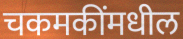
चकमकींमधील